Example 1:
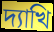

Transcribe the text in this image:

দ্যাখি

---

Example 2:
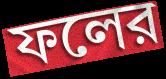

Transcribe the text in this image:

ফলের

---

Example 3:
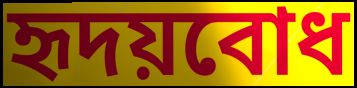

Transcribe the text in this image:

হৃদয়বোধ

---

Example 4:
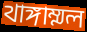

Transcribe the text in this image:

থাঙ্গাম্মল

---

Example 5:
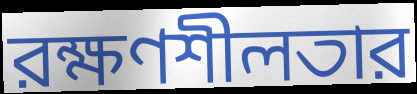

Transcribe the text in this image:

রক্ষণশীলতার